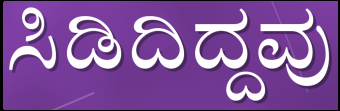
ಸಿಡಿದಿದ್ದವು